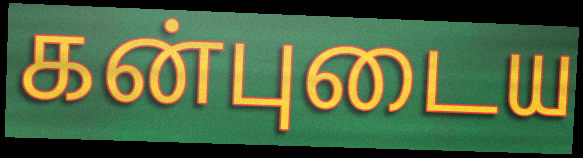
கன்புடைய